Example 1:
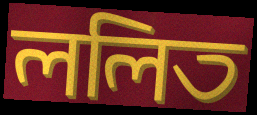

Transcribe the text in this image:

ললিত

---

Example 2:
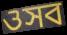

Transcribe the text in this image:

ওসব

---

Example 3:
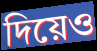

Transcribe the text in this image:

দিয়েও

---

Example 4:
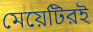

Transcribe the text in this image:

মেয়েটিরই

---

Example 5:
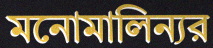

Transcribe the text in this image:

মনোমালিন্যর